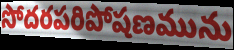
సోదరపరిపోషణమును